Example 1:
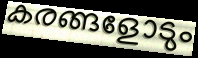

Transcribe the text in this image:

കരങ്ങളോടും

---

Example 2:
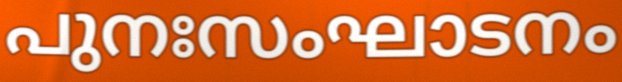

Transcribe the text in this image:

പുനഃസംഘാടനം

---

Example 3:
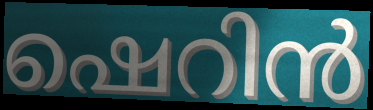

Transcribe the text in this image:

ഷെറിൻ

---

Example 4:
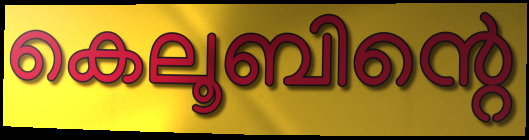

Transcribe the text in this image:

കെലൂബിന്റെ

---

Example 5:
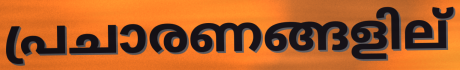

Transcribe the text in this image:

പ്രചാരണങ്ങളില്